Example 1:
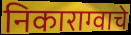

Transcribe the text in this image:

निकाराग्वाचे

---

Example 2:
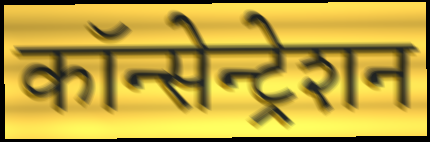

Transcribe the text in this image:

कॉन्सेन्ट्रेशन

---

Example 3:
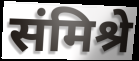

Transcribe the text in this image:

संमिश्रे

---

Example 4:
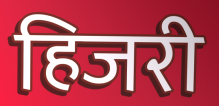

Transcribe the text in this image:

हिजरी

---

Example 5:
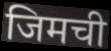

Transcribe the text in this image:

जिमची